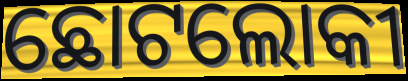
ଛୋଟଲୋକୀ